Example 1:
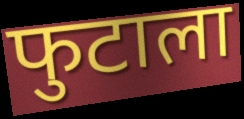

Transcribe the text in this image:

फुटाला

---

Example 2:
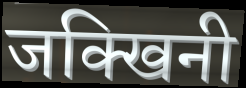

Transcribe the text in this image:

जक्खिनी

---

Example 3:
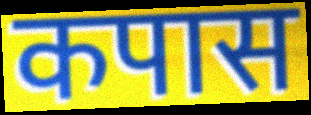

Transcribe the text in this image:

कपास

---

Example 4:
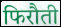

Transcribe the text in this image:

फिरौती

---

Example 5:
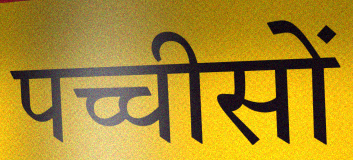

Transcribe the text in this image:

पच्चीसों